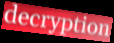
decryption